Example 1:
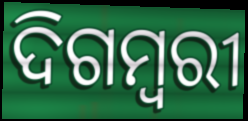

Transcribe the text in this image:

ଦିଗମ୍ୱରୀ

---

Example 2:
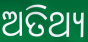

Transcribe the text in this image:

ଅତିଥ୍ୟ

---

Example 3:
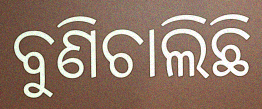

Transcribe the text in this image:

ବୁଣିଚାଲିଛି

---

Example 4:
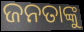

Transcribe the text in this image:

ଜନତାଙ୍କୁ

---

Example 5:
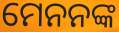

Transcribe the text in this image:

ମେନନଙ୍କ